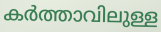
കർത്താവിലുള്ള